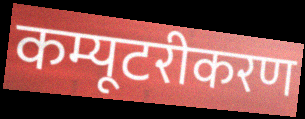
कम्यूटरीकरण